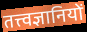
तत्त्वज्ञानियों